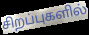
சிறப்புகளில்